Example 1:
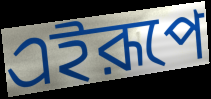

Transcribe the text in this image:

এইরূপে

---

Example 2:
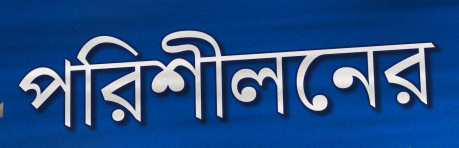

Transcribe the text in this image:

পরিশীলনের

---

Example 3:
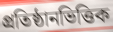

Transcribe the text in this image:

প্রতিষ্ঠানভিত্তিক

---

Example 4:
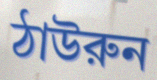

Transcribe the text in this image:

ঠাউরুন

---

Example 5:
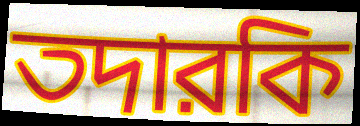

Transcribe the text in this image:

তদারকি